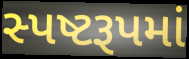
સ્પષ્ટરૂપમાં